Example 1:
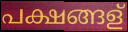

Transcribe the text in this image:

പക്ഷങ്ങള്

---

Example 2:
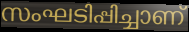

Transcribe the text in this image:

സംഘടിപ്പിച്ചാണ്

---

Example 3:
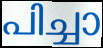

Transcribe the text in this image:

പിച്ചാ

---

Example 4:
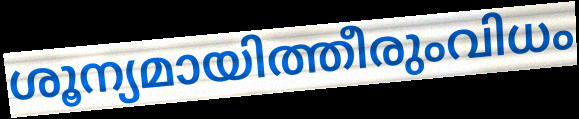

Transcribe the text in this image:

ശൂന്യമായിത്തീരുംവിധം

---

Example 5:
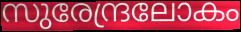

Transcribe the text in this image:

സുരേന്ദ്രലോകം